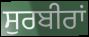
ਸੁਰਬੀਰਾਂ